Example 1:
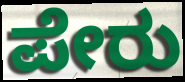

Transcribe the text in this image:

ಪೇರು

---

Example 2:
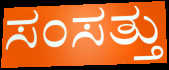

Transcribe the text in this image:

ಸಂಸತ್ತು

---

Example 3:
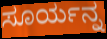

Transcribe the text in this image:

ಸೂರ್ಯನ್ನ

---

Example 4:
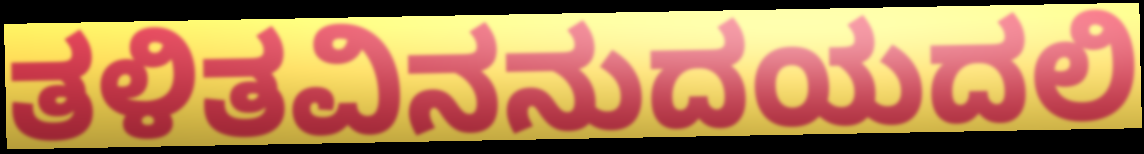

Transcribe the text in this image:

ತಳಿತವಿನನುದಯದಲಿ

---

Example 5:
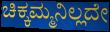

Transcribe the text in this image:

ಚಿಕ್ಕಮ್ಮನಿಲ್ಲದೇ